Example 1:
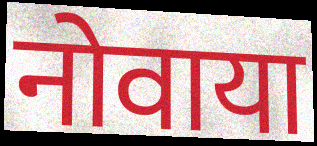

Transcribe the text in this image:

नोवाया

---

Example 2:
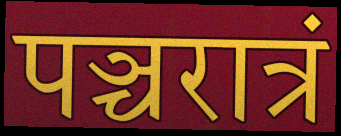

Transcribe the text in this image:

पञ्चरात्रं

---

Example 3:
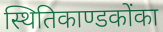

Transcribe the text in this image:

स्थितिकाण्डकोंका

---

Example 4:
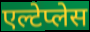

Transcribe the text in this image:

एल्टेप्लेस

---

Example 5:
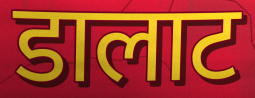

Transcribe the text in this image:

डालाट